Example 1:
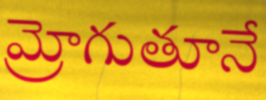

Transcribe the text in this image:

మ్రోగుతూనే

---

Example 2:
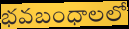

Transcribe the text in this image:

భవబంధాలలో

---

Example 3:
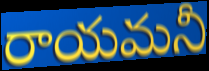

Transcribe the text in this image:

రాయమనీ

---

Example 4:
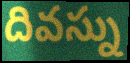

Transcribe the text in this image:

దివస్ను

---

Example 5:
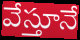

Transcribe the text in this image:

వేస్తూనే